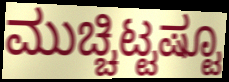
ಮುಚ್ಚಿಟ್ಟಷ್ಟೂ